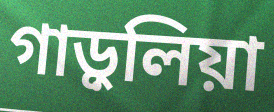
গাড়ুলিয়া